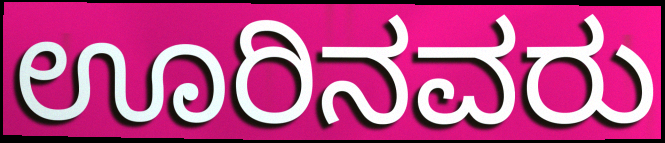
ಊರಿನವರು